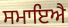
ਸਮਾਇਐ